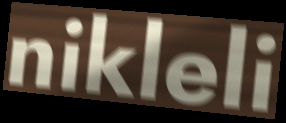
nikleli